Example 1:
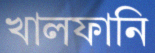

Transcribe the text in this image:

খালফানি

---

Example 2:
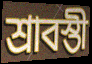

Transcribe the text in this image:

শ্রাবস্তী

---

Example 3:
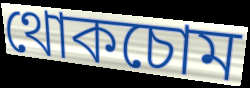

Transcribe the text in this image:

থোকচোম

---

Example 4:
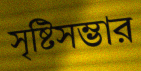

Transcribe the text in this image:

সৃষ্টিসম্ভার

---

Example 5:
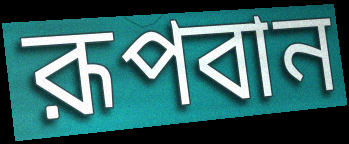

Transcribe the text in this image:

রূপবান